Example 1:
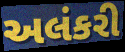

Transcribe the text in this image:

અલંકરી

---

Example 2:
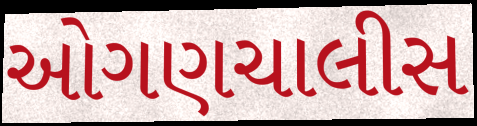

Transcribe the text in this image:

ઓગણચાલીસ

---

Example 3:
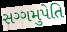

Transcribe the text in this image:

સગ્ગમુપેતિ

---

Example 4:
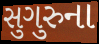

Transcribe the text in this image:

સુગુરુના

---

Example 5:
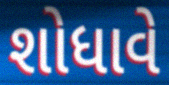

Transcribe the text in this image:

શોધાવે